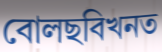
বোলছবিখনত